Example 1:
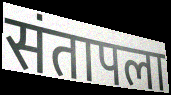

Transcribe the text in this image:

संतापला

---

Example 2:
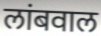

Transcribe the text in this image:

लांबवाल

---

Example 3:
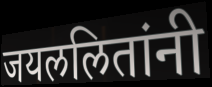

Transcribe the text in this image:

जयललितांनी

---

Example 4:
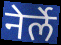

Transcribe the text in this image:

नेर्ले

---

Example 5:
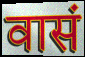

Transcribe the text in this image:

वासं